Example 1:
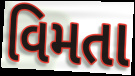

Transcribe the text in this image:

વિમતા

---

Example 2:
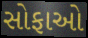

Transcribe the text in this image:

સોફાઓ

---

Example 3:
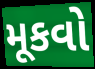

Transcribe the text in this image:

મૂકવો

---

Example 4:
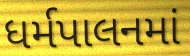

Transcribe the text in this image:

ધર્મપાલનમાં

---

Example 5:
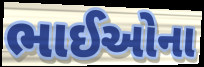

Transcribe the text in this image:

ભાઈઓના